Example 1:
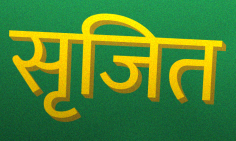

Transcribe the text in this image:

सृजित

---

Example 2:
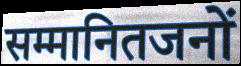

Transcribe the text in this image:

सम्मानितजनों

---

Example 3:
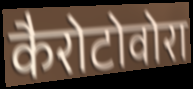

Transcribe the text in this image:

कैरोटोवोरा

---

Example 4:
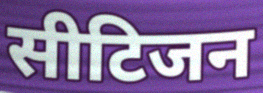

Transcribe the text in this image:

सीटिजन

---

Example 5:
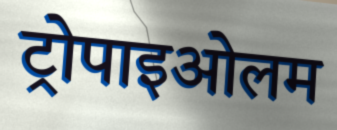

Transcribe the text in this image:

ट्रोपाइओलम